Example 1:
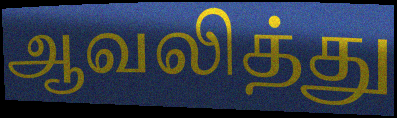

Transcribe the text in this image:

ஆவலித்து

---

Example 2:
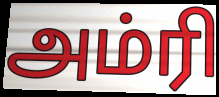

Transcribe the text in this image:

அம்ரி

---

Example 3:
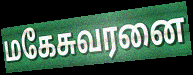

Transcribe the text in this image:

மகேசுவரனை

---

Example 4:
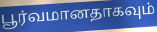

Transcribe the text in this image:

பூர்வமானதாகவும்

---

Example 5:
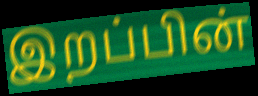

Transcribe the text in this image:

இறப்பின்